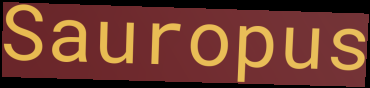
Sauropus